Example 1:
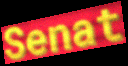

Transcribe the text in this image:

Senat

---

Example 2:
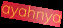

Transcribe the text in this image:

ayahnya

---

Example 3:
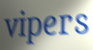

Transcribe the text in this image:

vipers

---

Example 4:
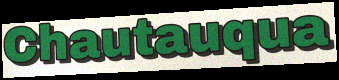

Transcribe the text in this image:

Chautauqua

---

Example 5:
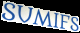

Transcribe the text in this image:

SUMIFS